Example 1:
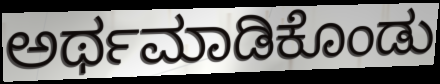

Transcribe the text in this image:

ಅರ್ಥಮಾಡಿಕೊಂಡು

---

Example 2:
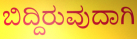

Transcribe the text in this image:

ಬಿದ್ದಿರುವುದಾಗಿ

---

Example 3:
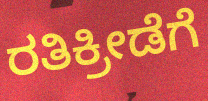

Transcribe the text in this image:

ರತಿಕ್ರೀಡೆಗೆ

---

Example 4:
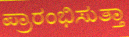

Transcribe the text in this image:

ಪ್ರಾರಂಭಿಸುತ್ತಾ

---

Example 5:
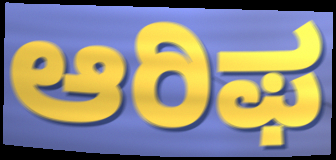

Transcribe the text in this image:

ಆರಿಫ